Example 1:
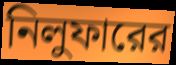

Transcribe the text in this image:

নিলুফারের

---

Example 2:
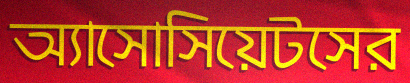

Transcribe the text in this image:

অ্যাসোসিয়েটসের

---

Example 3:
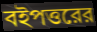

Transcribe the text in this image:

বইপত্তরের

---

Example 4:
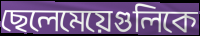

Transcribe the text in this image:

ছেলেমেয়েগুলিকে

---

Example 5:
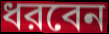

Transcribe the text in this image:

ধরবেন